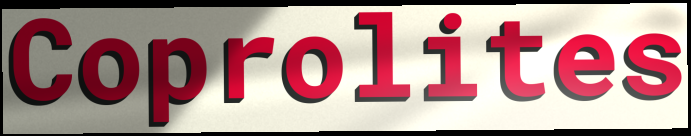
Coprolites